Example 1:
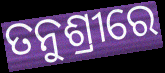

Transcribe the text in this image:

ତନୁଶ୍ରୀରେ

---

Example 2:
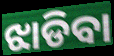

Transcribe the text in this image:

ଝାଡିବା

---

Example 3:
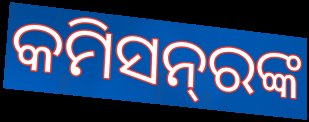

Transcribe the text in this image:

କମିସନ୍‍ରଙ୍କ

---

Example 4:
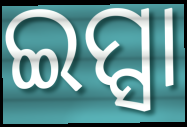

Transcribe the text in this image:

ଇପ୍ସା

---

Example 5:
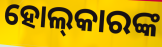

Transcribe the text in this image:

ହୋଲ୍‍କାରଙ୍କ